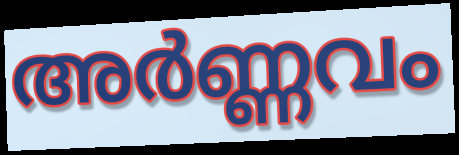
അർണ്ണവം